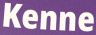
Kenne